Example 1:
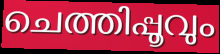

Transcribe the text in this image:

ചെത്തിപ്പൂവും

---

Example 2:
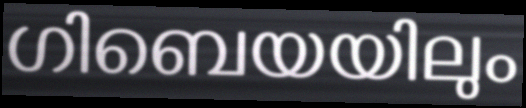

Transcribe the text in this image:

ഗിബെയയിലും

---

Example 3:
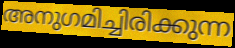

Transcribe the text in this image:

അനുഗമിച്ചിരിക്കുന്ന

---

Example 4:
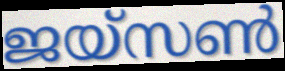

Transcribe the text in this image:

ജയ്സൺ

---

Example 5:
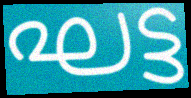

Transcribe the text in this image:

ഘട്ട